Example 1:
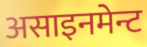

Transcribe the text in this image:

असाइनमेन्ट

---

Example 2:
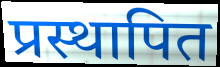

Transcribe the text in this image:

प्रस्थापित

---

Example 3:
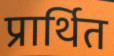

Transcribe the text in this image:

प्रार्थित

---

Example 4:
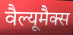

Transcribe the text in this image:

वैल्यूमैक्स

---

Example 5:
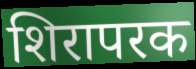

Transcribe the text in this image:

शिरापरक